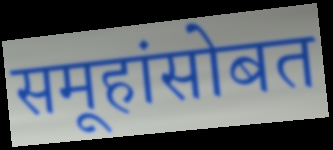
समूहांसोबत